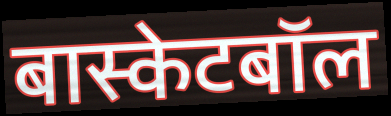
बास्केटबॉल